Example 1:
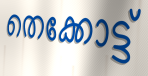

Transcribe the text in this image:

തെക്കോട്ട്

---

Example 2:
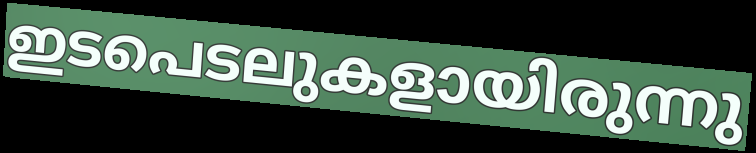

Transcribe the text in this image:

ഇടപെടലുകളായിരുന്നു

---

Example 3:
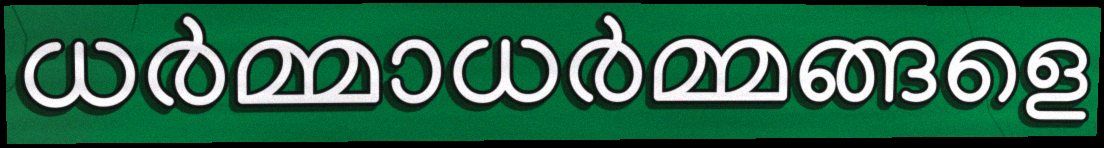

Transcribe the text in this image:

ധർമ്മാധർമ്മങ്ങളെ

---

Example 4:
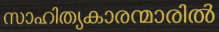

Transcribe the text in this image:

സാഹിത്യകാരന്മാരിൽ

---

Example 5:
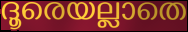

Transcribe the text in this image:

ദൂരെയല്ലാതെ